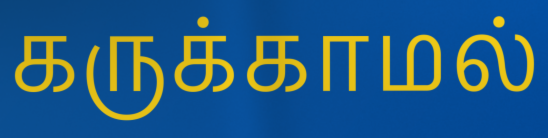
கருக்காமல்